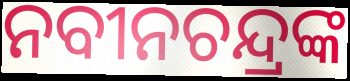
ନବୀନଚନ୍ଦ୍ରଙ୍କ